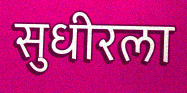
सुधीरला